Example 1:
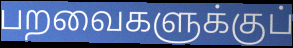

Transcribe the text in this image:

பறவைகளுக்குப்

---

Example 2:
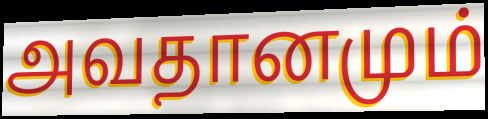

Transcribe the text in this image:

அவதானமும்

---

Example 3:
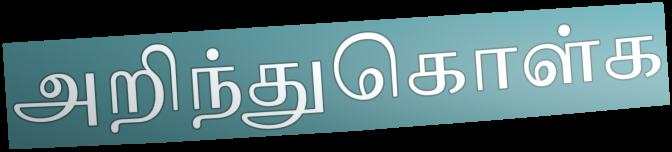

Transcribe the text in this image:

அறிந்துகொள்க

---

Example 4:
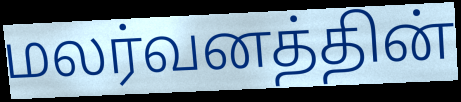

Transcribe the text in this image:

மலர்வனத்தின்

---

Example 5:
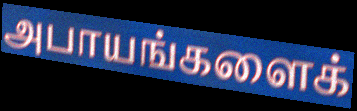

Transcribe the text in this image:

அபாயங்களைக்